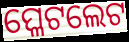
ପ୍ଳେଟଲେଟ